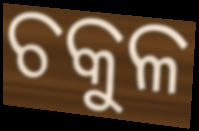
ଚକୁଳ